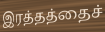
இரத்தத்தைச்